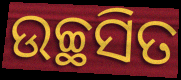
ଉଚ୍ଛସିତ